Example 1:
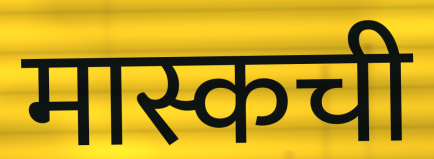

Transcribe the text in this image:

मास्कची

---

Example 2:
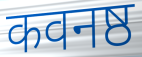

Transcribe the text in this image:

कवनष्ठ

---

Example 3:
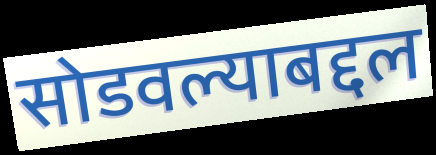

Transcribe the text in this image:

सोडवल्याबद्दल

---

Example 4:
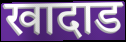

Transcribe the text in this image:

खादाड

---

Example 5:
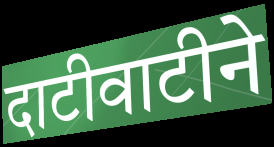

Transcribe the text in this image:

दाटीवाटीने